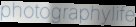
photographylife